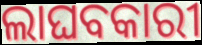
ଲାଘବକାରୀ